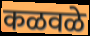
कळवळे